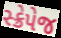
સ્ક્રેપેજ